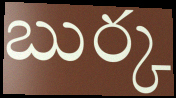
బుర్క